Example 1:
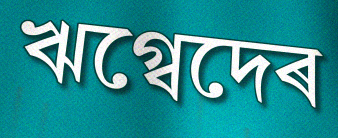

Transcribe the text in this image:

ঋগ্বেদেৰ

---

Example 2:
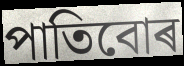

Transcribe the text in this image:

পাতিবোৰ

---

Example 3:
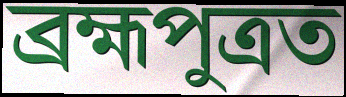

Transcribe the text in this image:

ব্ৰহ্মপুত্ৰত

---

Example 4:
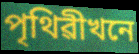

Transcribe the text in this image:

পৃথিৱীখনে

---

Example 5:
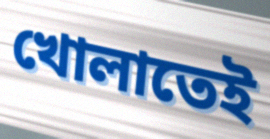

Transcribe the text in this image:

খোলাতেই